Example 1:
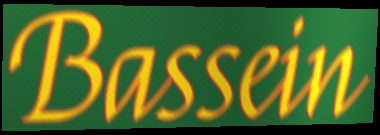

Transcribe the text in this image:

Bassein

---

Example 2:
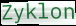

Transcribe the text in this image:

Zyklon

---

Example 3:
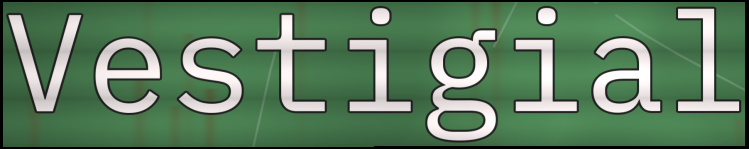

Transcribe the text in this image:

Vestigial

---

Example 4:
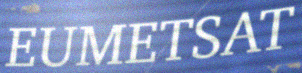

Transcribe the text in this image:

EUMETSAT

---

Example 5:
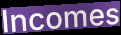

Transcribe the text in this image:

Incomes